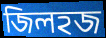
জিলহজ